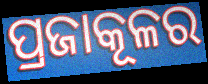
ପ୍ରଜାକୂଳର